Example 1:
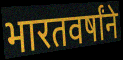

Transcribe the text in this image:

भारतवर्षांने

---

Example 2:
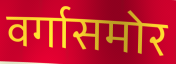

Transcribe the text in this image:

वर्गासमोर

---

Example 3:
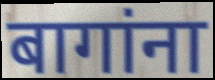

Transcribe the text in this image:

बागांना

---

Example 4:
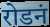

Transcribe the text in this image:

रोडनं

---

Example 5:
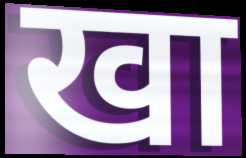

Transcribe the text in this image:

खा